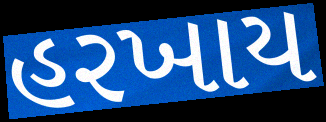
હરખાય